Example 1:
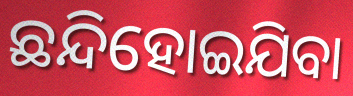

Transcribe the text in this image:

ଛନ୍ଦିହୋଇଯିବା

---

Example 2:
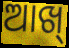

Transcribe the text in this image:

ଆଖ୍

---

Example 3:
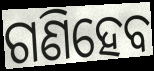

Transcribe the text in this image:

ଗଣିହେବ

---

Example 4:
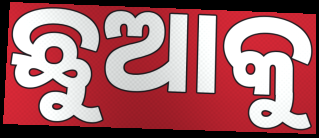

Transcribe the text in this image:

ଛୁଆକୁ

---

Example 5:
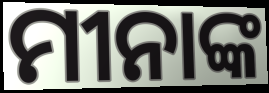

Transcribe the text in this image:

ମୀନାଙ୍କ